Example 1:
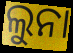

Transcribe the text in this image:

ଲୁନା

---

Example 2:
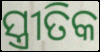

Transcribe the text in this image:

ସ୍ତ୍ରୀତିକ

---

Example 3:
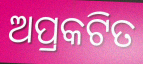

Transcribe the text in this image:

ଅପ୍ରକଟିତ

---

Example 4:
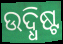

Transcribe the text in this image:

ଉଦ୍ଧିଷ୍ଟ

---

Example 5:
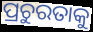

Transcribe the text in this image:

ପ୍ରଚୁରତାକୁ